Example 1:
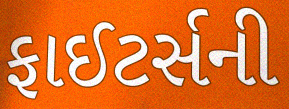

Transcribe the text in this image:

ફાઈટર્સની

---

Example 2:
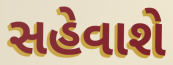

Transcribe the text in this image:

સહેવાશે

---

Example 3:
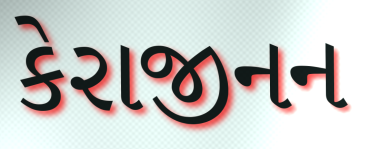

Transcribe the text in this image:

કેરાજીનન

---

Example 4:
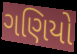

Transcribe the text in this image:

ગણિયો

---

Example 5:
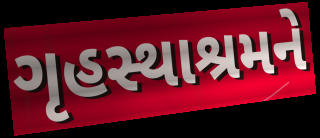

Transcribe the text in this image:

ગૃહસ્થાશ્રમને